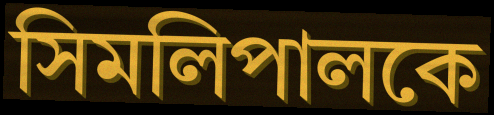
সিমলিপালকে